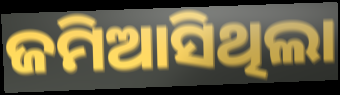
ଜମିଆସିଥିଲା